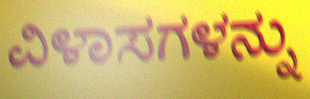
ವಿಳಾಸಗಳನ್ನು